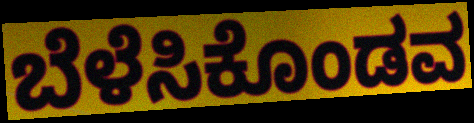
ಬೆಳೆಸಿಕೊಂಡವ